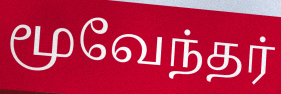
மூவேந்தர்